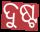
ଦୁଷ୍ଟ